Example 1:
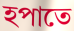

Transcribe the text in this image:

হপাতে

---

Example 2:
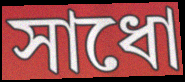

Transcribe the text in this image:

সাধো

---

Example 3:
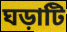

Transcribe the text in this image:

ঘড়াটি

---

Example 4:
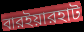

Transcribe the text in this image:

বারইয়ারহাট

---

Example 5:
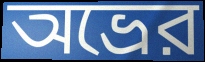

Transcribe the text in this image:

অভ্রের